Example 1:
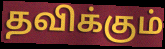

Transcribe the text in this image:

தவிக்கும்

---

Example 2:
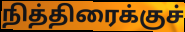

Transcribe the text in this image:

நித்திரைக்குச்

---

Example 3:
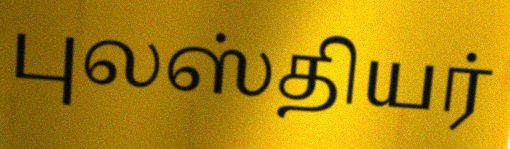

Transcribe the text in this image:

புலஸ்தியர்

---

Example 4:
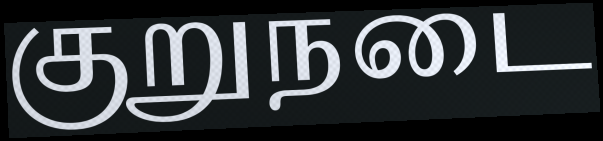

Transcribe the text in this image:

குறுநடை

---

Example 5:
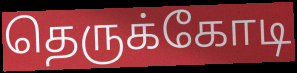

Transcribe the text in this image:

தெருக்கோடி